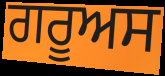
ਗਰੂਅਸ